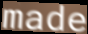
made